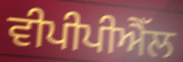
ਵੀਪੀਪੀਐੱਲ